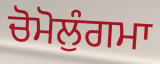
ਚੋਮੋਲੁੰਗਮਾ